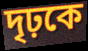
দৃঢ়কে